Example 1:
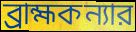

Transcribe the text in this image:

ব্রাহ্মকন্যার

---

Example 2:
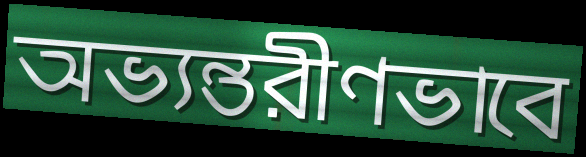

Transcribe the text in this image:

অভ্যন্তরীণভাবে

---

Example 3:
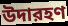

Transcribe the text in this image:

উদারহণ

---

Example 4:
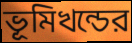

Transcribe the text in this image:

ভূমিখন্ডের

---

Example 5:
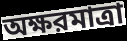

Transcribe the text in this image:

অক্ষরমাত্রা